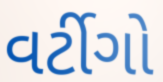
વર્ટીગો